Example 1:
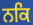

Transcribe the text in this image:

ਨਕਿ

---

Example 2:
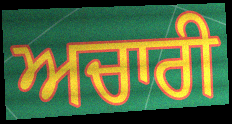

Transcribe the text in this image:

ਅਚਾਰੀ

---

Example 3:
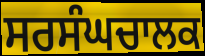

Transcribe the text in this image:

ਸਰਸੰਘਚਾਲਕ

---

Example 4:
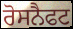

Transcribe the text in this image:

ਰੋਸਨੈਫਟ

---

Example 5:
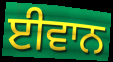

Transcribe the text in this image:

ਈਵਾਨ